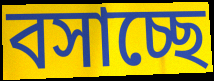
বসাচ্ছে